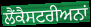
ਲੈਂਕੈਸਟਰੀਅਨਾਂ